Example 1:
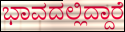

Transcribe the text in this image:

ಭಾವದಲ್ಲಿದ್ದಾರೆ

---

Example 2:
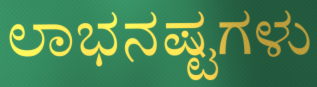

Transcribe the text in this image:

ಲಾಭನಷ್ಟಗಳು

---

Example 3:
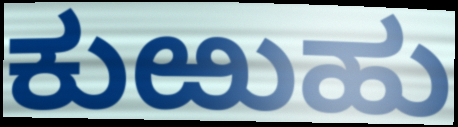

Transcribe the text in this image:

ಕುಱುಹು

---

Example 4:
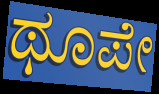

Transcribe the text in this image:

ಥೂಪೇ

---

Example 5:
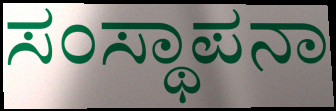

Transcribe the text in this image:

ಸಂಸ್ಥಾಪನಾ